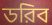
ডরিব